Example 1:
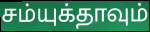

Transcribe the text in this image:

சம்யுக்தாவும்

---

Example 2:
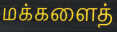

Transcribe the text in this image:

மக்களைத்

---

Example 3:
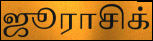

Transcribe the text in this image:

ஜூராசிக்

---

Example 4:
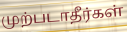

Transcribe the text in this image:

முற்படாதீர்கள்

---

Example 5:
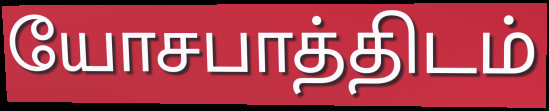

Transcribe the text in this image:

யோசபாத்திடம்